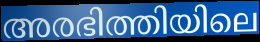
അരഭിത്തിയിലെ